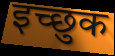
इच्‍छुक